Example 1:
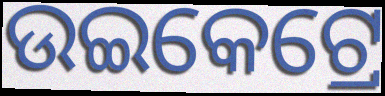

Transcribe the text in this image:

ଉଇକେଟ୍ରେ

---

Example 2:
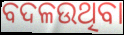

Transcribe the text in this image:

ବଦଳଉଥିବା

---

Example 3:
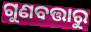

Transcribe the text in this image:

ଗୁଣବତ୍ତାରୁ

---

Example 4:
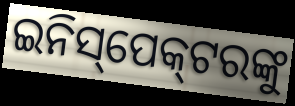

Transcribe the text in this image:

ଇନିସ୍‌ପେକ୍‌ଟରଙ୍କୁ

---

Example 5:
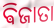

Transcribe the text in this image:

ଵିଜାତା